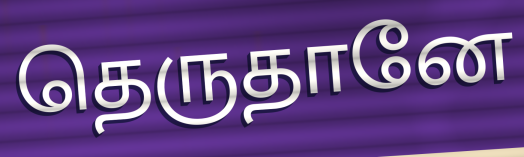
தெருதானே